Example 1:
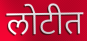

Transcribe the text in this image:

लोटीत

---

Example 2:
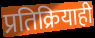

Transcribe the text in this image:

प्रतिक्रियाही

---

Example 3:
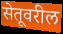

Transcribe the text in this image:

सेतूवरील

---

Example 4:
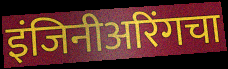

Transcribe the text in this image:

इंजिनीअरिंगचा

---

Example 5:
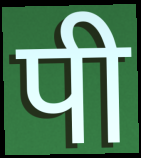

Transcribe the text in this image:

पी